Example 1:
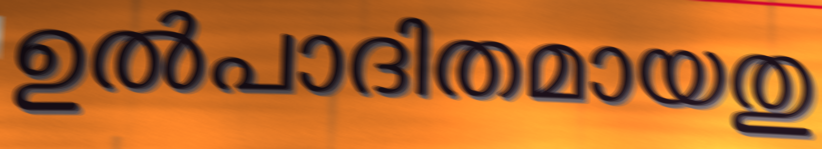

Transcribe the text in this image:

ഉൽപാദിതമായതു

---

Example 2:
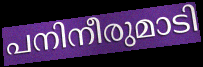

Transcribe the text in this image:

പനിനീരുമാടി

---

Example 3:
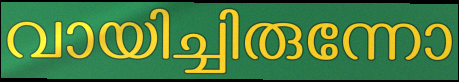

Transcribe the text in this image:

വായിച്ചിരുന്നോ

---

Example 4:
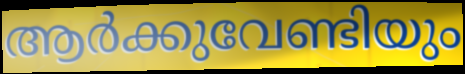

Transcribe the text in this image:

ആർക്കുവേണ്ടിയും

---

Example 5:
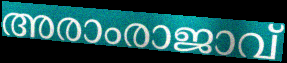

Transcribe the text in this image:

അരാംരാജാവ്